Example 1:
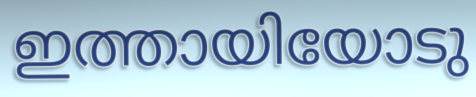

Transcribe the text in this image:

ഇത്തായിയോടു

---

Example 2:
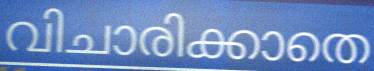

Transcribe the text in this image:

വിചാരിക്കാതെ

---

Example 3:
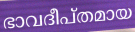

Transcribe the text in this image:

ഭാവദീപ്തമായ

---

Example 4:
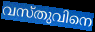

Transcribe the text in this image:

വസ്തുവിനെ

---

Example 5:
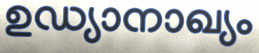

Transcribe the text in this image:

ഉഡ്യാനാഖ്യം